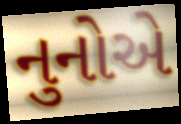
નુનોએ